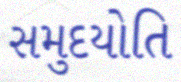
સમુદયોતિ